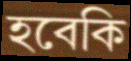
হবেকি